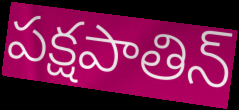
పక్షపాతిన్